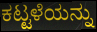
ಕಟ್ಟಳೆಯನ್ನು